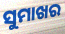
ସୁମାଖର